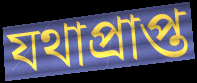
যথাপ্ৰাপ্ত